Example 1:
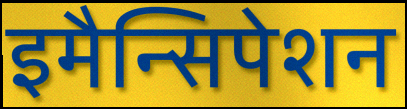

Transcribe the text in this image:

इमैन्सिपेशन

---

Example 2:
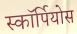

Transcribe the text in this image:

स्कॉर्पियोस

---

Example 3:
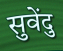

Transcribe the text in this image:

सुवेंदु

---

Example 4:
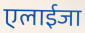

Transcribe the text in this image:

एलाईजा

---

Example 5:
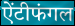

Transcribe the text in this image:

ऐंटीफंगल